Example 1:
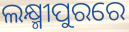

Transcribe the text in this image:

ଲକ୍ଷ୍ମୀପୁରରେ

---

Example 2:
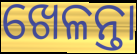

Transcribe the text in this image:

ଖେଳନ୍ତା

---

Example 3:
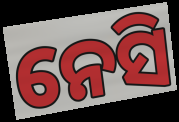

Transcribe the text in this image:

ନେସି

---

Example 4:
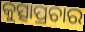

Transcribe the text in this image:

କୁତ୍ସାପ୍ରଚାର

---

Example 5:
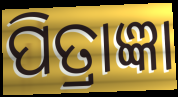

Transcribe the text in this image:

ପିତ୍ରାଜ୍ଞା